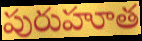
పురుహూత